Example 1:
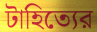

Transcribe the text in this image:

টাহিত্যের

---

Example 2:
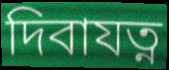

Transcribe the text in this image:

দিবাযত্ন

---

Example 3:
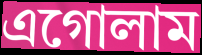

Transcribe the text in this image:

এগোলাম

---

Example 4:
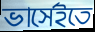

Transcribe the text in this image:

ভার্সেইতে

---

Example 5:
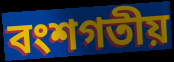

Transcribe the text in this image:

বংশগতীয়